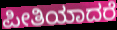
ಪೀತಿಯಾದರೆ